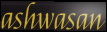
ashwasan